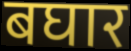
बघार